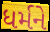
ધર્મને